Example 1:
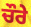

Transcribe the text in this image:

ਚੌਰੇ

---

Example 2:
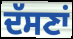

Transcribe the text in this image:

ਦੱਸਣਾਂ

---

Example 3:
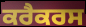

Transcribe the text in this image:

ਕਰੈਕਰਸ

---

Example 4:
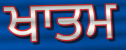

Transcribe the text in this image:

ਖਾਤਮ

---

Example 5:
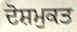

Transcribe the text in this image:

ਦੋਸ਼ਮੁਕਤ